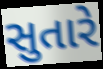
સુતારે